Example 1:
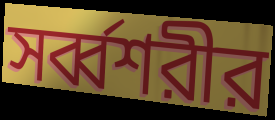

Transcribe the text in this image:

সর্ব্বশরীর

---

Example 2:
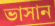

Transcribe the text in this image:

ভাসান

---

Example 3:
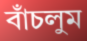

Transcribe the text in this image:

বাঁচলুম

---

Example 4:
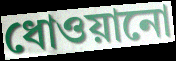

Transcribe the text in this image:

ধোওয়ানো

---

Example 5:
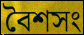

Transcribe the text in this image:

বৈশসং